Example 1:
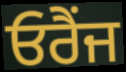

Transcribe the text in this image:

ਓਰੈਂਜ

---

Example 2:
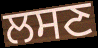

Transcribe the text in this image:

ਲਸਣ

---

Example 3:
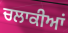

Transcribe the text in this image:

ਚਲਾਕੀਆਂ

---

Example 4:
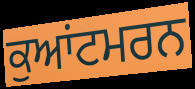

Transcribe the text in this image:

ਕੁਆਂਟਮਰਨ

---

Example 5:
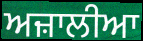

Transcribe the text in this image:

ਅਜ਼ਾਲੀਆ